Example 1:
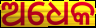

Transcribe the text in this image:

ଅଧେକ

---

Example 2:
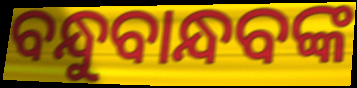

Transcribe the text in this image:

ବନ୍ଧୁବାନ୍ଧବଙ୍କ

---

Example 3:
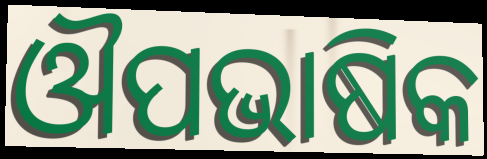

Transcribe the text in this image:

ଔପଭାଷିକ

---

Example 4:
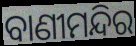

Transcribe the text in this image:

ବାଣୀମନ୍ଦିର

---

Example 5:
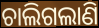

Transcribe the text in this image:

ଚାଲିଗଲାଣି